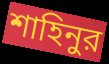
শাহিনুর